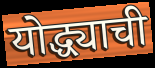
योद्ध्याची